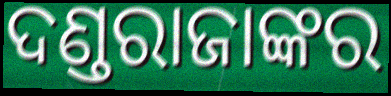
ଦଣ୍ଡରାଜାଙ୍କର